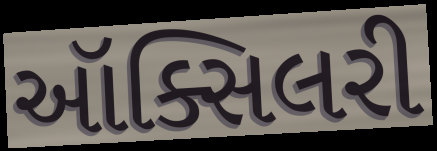
ઑક્સિલરી